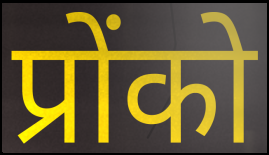
प्रोंको